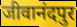
जीवानंदपुर